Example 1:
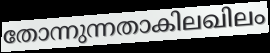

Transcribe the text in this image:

തോന്നുന്നതാകിലഖിലം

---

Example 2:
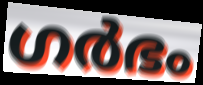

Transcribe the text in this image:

ഗർഭം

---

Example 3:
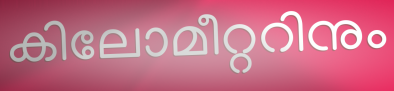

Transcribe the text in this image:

കിലോമീറ്ററിനും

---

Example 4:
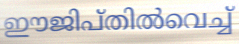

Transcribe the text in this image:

ഈജിപ്തിൽവെച്ച്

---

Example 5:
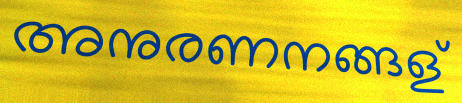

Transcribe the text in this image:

അനുരണനങ്ങള്